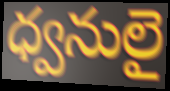
ధ్వనులై